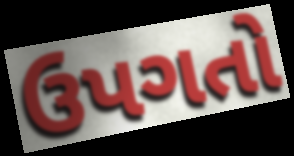
ઉપગતો